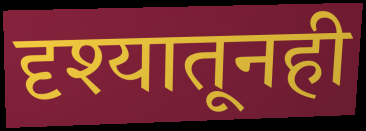
दृश्यातूनही